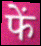
फें